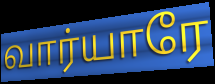
வார்யாரே